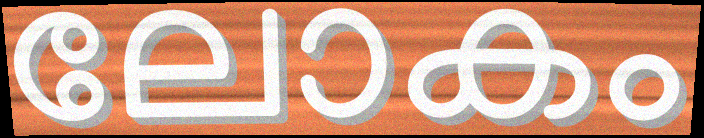
ലോകം